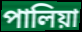
পালিয়া